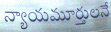
న్యాయమూర్తులనే